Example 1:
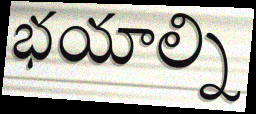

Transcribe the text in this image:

భయాల్ని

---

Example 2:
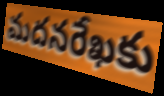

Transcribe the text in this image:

మదనరేఖకు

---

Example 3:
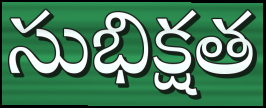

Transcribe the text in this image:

సుభిక్షత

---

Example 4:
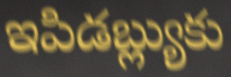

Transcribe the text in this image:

ఇపిడబ్ల్యుకు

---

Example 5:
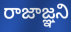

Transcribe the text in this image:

రాజాజ్ఞని